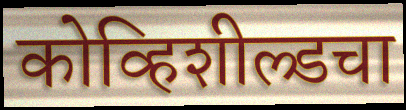
कोव्हिशील्डचा